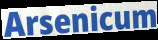
Arsenicum